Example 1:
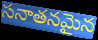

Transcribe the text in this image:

సనాతనమైన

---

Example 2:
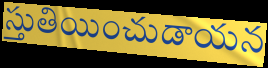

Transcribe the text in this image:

స్తుతియించుడాయన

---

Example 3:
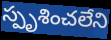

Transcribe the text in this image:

స్పృశించలేని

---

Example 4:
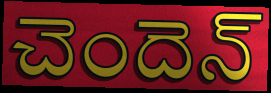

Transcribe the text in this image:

చెందెన్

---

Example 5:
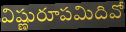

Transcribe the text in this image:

విష్ణురూపమిదివో